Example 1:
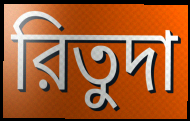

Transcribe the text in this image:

রিতুদা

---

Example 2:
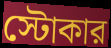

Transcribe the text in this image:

স্টোকার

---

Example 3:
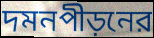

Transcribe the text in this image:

দমনপীড়নের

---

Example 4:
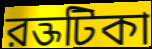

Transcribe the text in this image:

রক্তটিকা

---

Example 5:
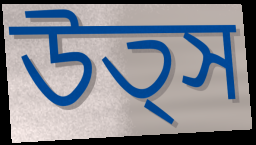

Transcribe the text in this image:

উত্স